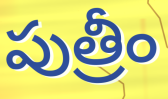
పుత్రీం